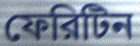
ফেরিটিন